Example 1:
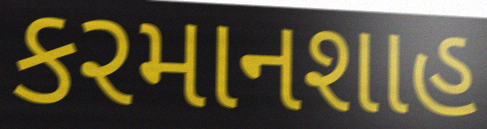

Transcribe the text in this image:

કરમાનશાહ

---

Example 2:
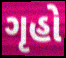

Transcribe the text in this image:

ગૃહો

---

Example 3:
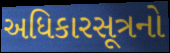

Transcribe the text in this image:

અધિકારસૂત્રનો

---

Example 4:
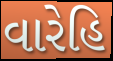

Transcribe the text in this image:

વારેહિ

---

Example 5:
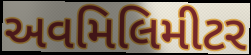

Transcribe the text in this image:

અવમિલિમીટર